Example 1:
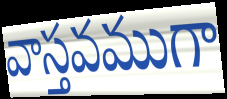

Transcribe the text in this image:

వాస్తవముగా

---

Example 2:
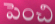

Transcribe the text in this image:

పెంచి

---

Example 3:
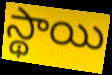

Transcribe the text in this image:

స్థాయి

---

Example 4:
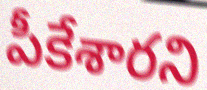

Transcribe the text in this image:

పీకేశారని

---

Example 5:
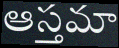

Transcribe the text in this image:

ఆస్తమా